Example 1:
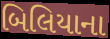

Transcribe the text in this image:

બિલિયાના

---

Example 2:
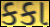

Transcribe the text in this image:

કકા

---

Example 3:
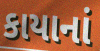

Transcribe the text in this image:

કાયાનાં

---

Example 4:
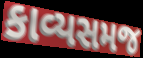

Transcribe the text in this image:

કાવ્યસમજ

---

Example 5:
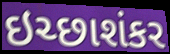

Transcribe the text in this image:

ઇચ્છાશંકર